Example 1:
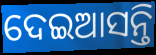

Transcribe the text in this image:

ଦେଇଆସନ୍ତି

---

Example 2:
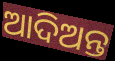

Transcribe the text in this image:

ଆଦିଅନ୍ତ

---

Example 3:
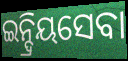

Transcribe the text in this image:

ଇନ୍ଦ୍ରିୟସେବା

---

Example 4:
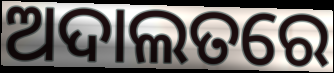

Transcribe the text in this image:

ଅଦାଲତରେ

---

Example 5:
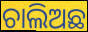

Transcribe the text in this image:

ଚାଲିଅଛ